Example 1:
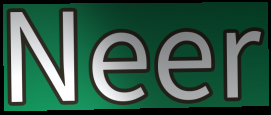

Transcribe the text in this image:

Neer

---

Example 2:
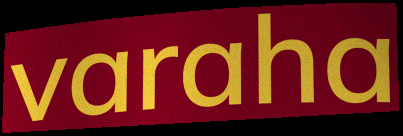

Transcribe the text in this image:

varaha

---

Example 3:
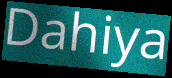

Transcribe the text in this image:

Dahiya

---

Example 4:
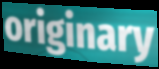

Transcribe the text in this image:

originary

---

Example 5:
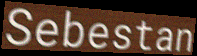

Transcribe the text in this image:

Sebestan